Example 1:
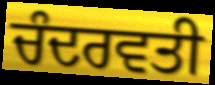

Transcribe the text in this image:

ਚੰਦਰਵਤੀ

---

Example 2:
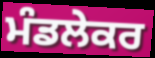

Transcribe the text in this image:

ਮੰਡਲੇਕਰ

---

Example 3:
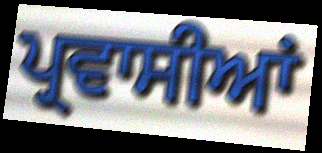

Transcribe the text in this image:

ਪ੍ਰਵਾਸੀਆਂ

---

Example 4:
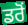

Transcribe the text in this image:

ਡਰੋਂ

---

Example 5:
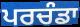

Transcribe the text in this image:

ਪਰਚੰਡਾ